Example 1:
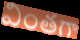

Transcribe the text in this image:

వింతగా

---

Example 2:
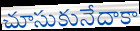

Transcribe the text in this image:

చూసుకునేదాకా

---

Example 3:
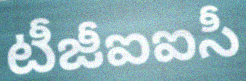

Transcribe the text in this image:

టీజీఐఐసీ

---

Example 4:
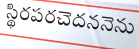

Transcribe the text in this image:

స్థిరపరచెదననెను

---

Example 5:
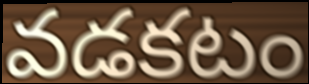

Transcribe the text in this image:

వడకటం